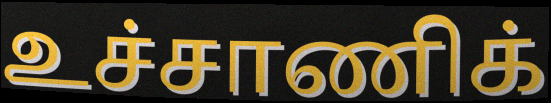
உச்சாணிக்